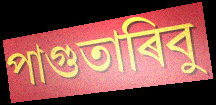
পাগুতাৰিবু